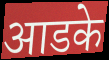
आडके